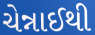
ચેન્નાઈથી